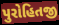
પુરોહિતજી